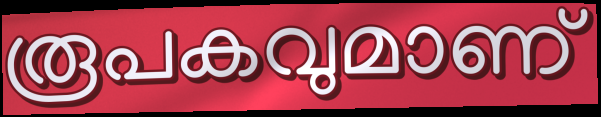
രൂപകവുമാണ്